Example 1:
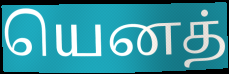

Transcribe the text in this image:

யெனத்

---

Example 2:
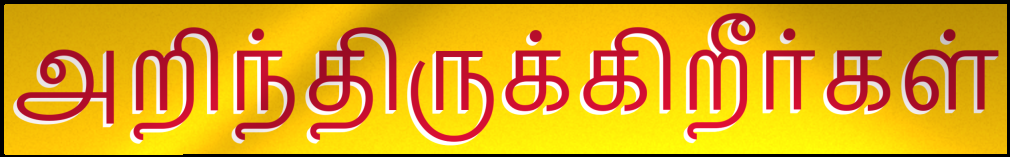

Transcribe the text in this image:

அறிந்திருக்கிறீர்கள்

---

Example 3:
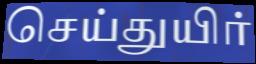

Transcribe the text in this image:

செய்துயிர்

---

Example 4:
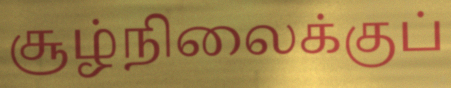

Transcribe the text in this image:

சூழ்நிலைக்குப்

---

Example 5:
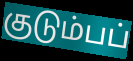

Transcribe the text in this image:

குடும்பப்